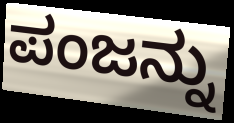
ಪಂಜನ್ನು